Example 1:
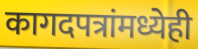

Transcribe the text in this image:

कागदपत्रांमध्येही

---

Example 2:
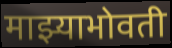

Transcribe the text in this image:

माझ्याभोवती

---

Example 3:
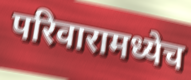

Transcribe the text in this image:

परिवारामध्येच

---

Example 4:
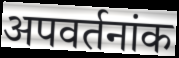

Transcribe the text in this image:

अपवर्तनांक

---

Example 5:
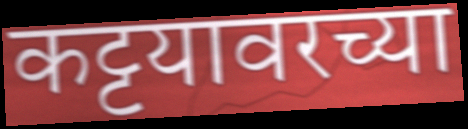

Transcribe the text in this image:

कट्टयावरच्या